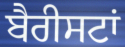
ਬੈਰੀਸਟਾਂ